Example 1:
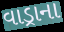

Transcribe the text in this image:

વાડ્રાના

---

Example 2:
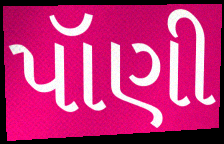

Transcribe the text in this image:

પૉણી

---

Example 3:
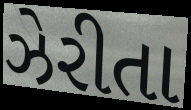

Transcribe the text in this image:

ઝેરીતા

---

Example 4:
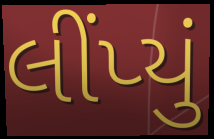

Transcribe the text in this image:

લીંપ્યું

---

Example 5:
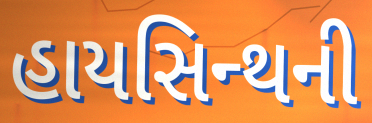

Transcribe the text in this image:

હાયસિન્થની